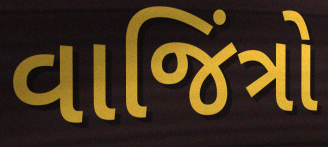
વાજિંત્રો